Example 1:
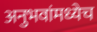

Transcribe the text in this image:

अनुभवांमध्येच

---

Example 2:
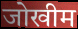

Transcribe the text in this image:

जोखीम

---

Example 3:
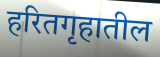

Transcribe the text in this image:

हरितगृहातील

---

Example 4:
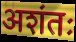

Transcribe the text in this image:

अशंतः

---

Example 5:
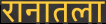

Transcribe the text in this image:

रानातला